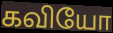
கவியோ